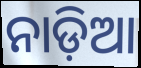
ନାଡ଼ିଆ